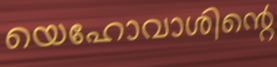
യെഹോവാശിന്റെ